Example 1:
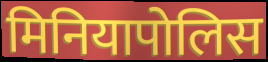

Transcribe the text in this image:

मिनियापोलिस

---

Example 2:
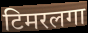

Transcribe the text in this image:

टिमरलगा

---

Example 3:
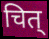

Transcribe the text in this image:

चित्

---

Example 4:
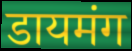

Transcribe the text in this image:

डायमंग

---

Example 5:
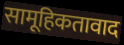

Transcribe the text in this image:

सामूहिकतावाद